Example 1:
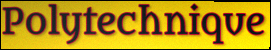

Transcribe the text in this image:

Polytechnique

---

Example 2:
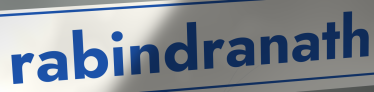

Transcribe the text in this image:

rabindranath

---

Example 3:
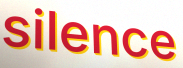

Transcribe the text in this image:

silence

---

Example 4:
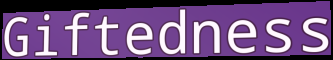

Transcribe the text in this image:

Giftedness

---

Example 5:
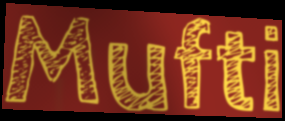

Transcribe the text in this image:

Mufti